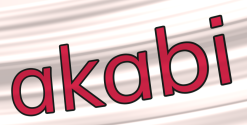
akabi